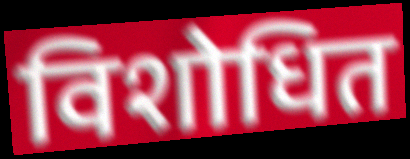
विशोधित